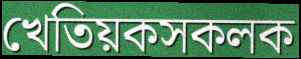
খেতিয়কসকলক